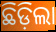
ଛିଡ଼ିଲା